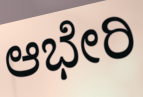
ಆಭೇರಿ